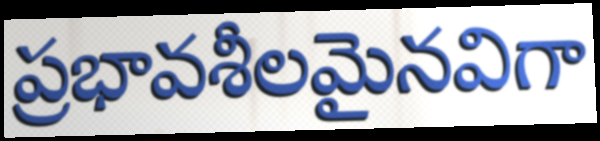
ప్రభావశీలమైనవిగా